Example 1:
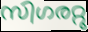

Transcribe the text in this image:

സിഗരറ്റു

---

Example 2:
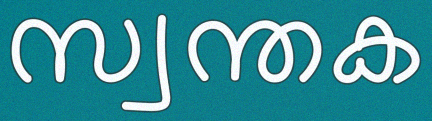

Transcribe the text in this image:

സ്വന്തക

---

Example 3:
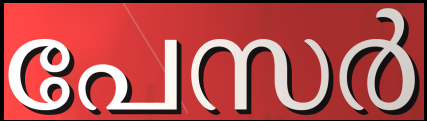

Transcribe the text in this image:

പേസർ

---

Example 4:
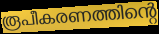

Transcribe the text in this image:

രൂപീകരണത്തിന്റെ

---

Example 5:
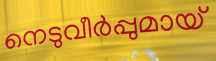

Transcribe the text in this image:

നെടുവീർപ്പുമായ്